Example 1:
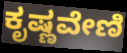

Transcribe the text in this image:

ಕೃಷ್ಣವೇಣಿ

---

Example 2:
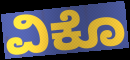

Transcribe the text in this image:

ವಿಕೊ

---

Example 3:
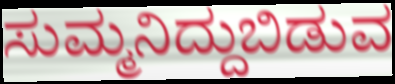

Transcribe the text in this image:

ಸುಮ್ಮನಿದ್ದುಬಿಡುವ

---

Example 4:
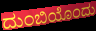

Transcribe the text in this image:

ದುಂಬಿಯೊಂದು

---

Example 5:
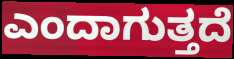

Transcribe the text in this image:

ಎಂದಾಗುತ್ತದೆ